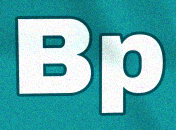
Bp